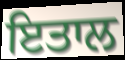
ਇਤਾਲ